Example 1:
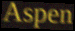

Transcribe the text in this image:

Aspen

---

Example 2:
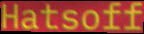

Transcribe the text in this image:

Hatsoff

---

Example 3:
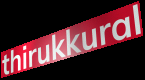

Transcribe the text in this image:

thirukkural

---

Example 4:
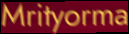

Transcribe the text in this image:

Mrityorma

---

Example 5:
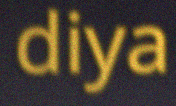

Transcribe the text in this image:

diya